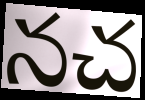
నచ